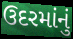
ઉદરમાંનું